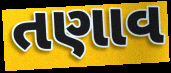
તણાવ